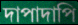
দাপাদাপি